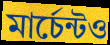
মার্চেন্টও